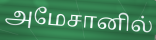
அமேசானில்